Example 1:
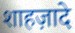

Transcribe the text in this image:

शाहज़ादे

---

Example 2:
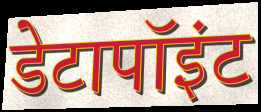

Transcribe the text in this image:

डेटापॉइंट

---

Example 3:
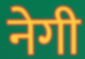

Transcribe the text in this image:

नेगी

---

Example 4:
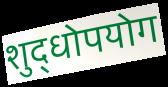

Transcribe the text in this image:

शुद्धोपयोग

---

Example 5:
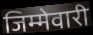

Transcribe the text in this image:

जिम्मेवारी